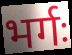
भर्गः